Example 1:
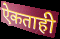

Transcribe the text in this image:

ऐकताही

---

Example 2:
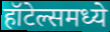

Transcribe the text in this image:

हॉटेल्समध्ये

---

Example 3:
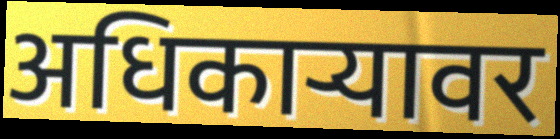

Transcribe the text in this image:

अधिकाऱ्यावर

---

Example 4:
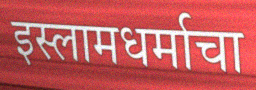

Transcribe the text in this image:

इस्लामधर्माचा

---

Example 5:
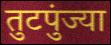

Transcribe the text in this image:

तुटपुंज्या